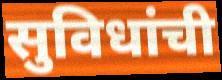
सुविधांची